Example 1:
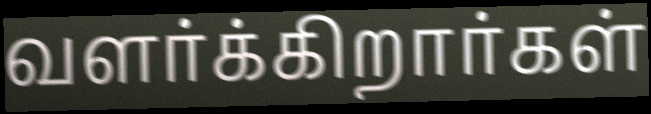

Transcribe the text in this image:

வளர்க்கிறார்கள்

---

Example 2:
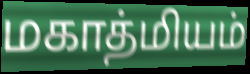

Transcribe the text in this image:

மகாத்மியம்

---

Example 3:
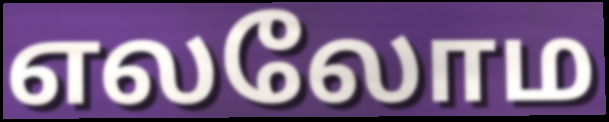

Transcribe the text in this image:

எலலோம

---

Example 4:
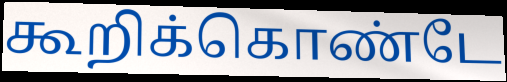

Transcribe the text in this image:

கூறிக்கொண்டே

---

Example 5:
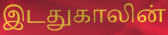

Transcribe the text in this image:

இடதுகாலின்